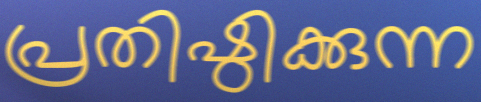
പ്രതിഷ്ഠിക്കുന്ന